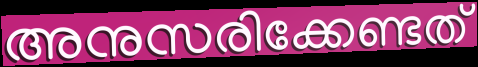
അനുസരിക്കേണ്ടത്